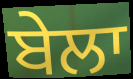
ਬੇਲਾ